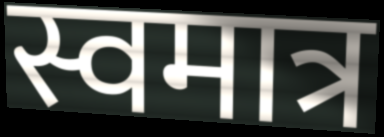
स्वमात्र